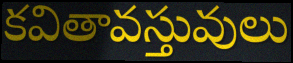
కవితావస్తువులు